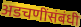
अडचणींसंबंधी